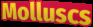
Molluscs